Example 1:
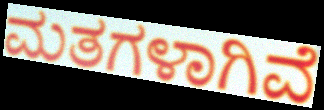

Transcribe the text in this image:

ಮತಗಳಾಗಿವೆ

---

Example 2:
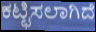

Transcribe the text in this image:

ಕಟ್ಟಿಸಲಾಗಿದೆ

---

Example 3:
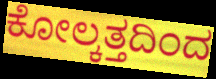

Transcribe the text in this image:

ಕೋಲ್ಕತ್ತದಿಂದ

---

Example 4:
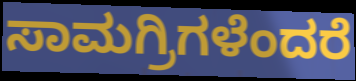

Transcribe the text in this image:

ಸಾಮಗ್ರಿಗಳೆಂದರೆ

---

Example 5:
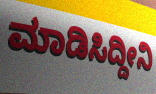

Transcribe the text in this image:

ಮಾಡಿಸಿದ್ದೀನಿ